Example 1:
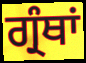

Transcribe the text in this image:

ਗ੍ਰੰਥਾਂ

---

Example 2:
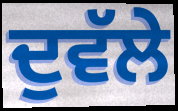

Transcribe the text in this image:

ਦੁਵੱਲੇ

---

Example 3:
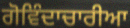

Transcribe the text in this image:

ਗੋਵਿੰਦਾਚਾਰੀਆ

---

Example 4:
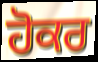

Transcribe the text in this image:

ਹੋਕਰ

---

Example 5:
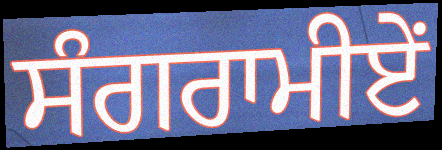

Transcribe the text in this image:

ਸੰਗਰਾਮੀਏਂ